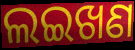
ଲଇଖଣ